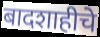
बादशाहीचे